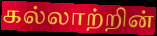
கல்லாற்றின்